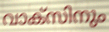
വാക്സിനും